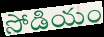
సోడియం